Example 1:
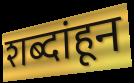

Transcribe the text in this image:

शब्दांहून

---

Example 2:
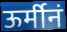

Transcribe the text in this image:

ऊर्मीनं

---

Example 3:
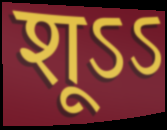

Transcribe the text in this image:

शूऽऽ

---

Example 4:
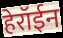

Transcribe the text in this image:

हेरॉईन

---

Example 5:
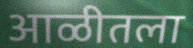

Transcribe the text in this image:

आळीतला